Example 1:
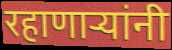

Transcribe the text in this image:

रहाणार्‍यांनी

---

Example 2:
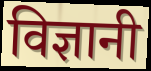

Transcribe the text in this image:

विज्ञानी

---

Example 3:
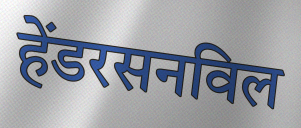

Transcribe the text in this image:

हेंडरसनविल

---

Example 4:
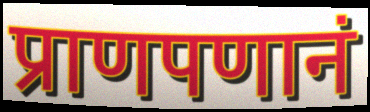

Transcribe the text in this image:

प्राणपणानं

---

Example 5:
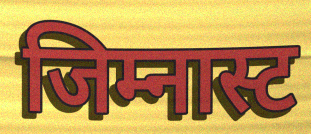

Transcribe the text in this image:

जिम्नास्ट